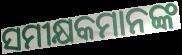
ସମୀକ୍ଷକମାନଙ୍କ